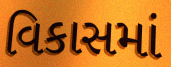
વિકાસમાં